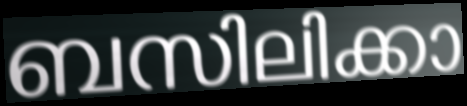
ബസിലിക്കാ